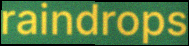
raindrops